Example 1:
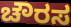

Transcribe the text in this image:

ಚೌರಸ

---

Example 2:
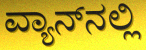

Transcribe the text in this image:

ವ್ಯಾನ್‌ನಲ್ಲಿ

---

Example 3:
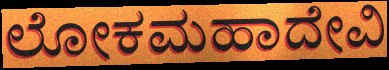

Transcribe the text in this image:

ಲೋಕಮಹಾದೇವಿ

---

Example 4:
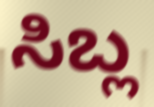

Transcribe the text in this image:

ಸಿಬ್ಲ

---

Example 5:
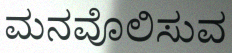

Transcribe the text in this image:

ಮನವೊಲಿಸುವ